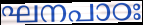
ഘനപാഠഃ